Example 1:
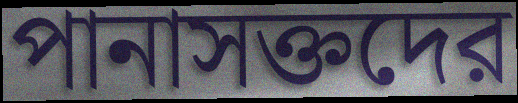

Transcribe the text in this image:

পানাসক্তদের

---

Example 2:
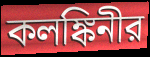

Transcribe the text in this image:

কলঙ্কিনীর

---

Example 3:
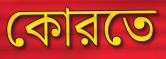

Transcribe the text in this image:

কোরতে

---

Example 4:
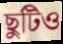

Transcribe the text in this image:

ছুটিও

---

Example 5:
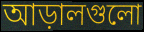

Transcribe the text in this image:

আড়ালগুলো